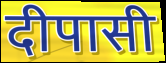
दीपासी